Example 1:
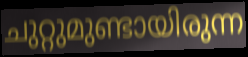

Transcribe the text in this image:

ചുറ്റുമുണ്ടായിരുന്ന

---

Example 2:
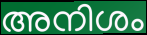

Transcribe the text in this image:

അനിശം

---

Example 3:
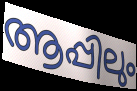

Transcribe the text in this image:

ആപ്പിലും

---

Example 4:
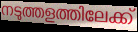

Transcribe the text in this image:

നടുത്തളത്തിലേക്ക്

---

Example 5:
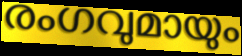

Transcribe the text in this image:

രംഗവുമായും